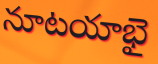
నూటయాభై